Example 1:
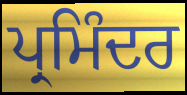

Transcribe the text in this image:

ਪ੍ਰਮਿੰਦਰ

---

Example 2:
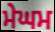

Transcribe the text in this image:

ਮੇਘਮ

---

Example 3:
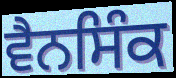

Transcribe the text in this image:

ਵੈਨਸਿੰਕ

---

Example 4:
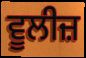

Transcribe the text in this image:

ਵੂਲੀਜ਼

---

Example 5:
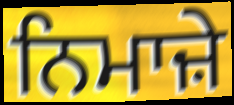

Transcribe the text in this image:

ਨਿਮਾਜ਼ੇ